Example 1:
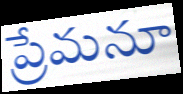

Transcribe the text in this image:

ప్రేమనూ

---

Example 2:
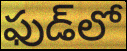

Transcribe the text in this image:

ఫుడ్‌లో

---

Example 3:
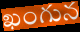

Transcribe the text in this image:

ఖంగున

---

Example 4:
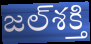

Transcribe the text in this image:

జల్‌శక్తి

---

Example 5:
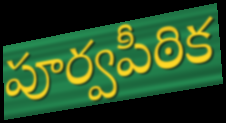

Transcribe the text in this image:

పూర్వపీఠిక